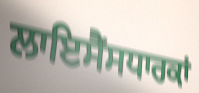
ਲਾਇਸੈਂਸਧਾਰਕਾਂ